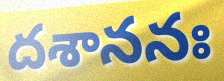
దశాననః